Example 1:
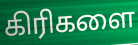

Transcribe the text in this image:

கிரிகளை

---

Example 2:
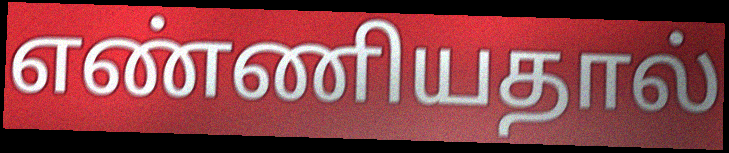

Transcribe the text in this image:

எண்ணியதால்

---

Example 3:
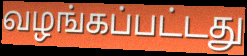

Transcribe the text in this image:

வழங்கப்பட்டது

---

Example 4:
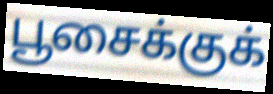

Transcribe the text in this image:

பூசைக்குக்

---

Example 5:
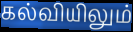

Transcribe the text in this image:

கல்வியிலும்